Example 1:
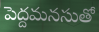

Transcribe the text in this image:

పెద్దమనసుతో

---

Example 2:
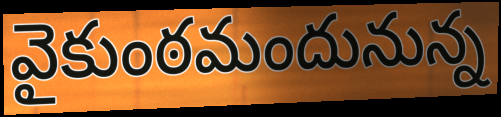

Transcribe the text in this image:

వైకుంఠమందునున్న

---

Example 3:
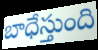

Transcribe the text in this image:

బాధేస్తుంది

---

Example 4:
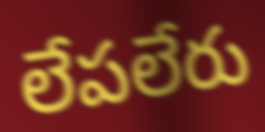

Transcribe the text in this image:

లేపలేరు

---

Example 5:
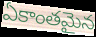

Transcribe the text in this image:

ఏకాంతమైన